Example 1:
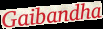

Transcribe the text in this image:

Gaibandha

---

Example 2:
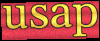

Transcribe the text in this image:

usap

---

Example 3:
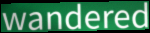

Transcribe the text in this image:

wandered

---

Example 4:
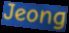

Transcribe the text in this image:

Jeong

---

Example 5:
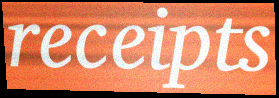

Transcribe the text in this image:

receipts